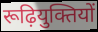
रूढ़ियुक्तियों